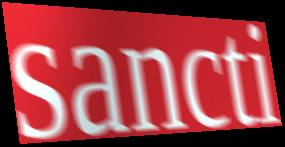
sancti